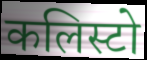
कलिस्टो